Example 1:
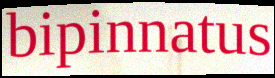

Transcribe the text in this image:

bipinnatus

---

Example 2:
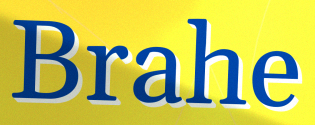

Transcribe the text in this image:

Brahe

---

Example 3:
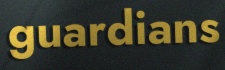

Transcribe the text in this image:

guardians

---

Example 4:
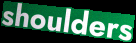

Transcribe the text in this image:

shoulders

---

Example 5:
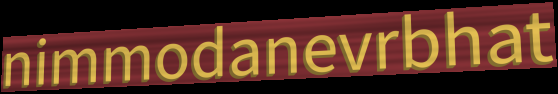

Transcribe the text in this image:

nimmodanevrbhat